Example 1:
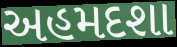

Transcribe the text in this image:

અહમદશા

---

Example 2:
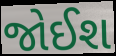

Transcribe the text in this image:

જોઈશ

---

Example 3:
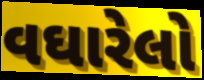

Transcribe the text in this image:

વઘારેલો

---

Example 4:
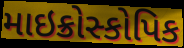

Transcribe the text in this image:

માઇક્રોસ્કોપિક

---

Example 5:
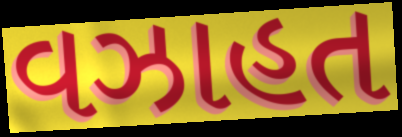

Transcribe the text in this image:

વઝાહત